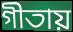
গীতায়